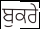
ਬੁਕਰੇ